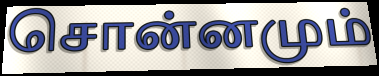
சொன்னமும்